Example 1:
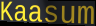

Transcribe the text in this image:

Kaasum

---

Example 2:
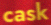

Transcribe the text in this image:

cask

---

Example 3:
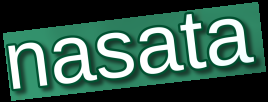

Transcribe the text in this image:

nasata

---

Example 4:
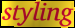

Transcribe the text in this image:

styling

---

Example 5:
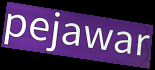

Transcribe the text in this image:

pejawar